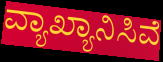
ವ್ಯಾಖ್ಯಾನಿಸಿವೆ